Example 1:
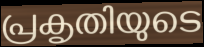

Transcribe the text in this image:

പ്രകൃതിയുടെ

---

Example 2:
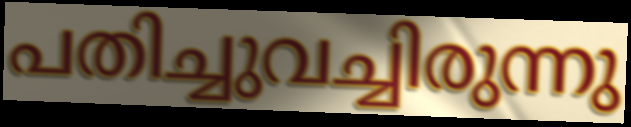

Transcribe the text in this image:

പതിച്ചുവച്ചിരുന്നു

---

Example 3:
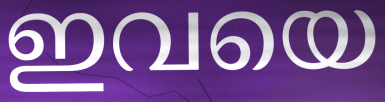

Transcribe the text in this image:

ഇവയെ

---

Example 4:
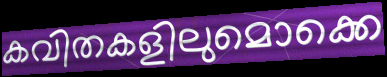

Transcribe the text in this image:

കവിതകളിലുമൊക്കെ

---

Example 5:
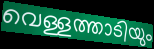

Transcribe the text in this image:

വെള്ളത്താടിയും